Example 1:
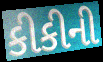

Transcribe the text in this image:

કીકીની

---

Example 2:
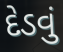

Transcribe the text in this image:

દેડવું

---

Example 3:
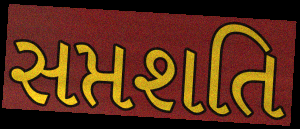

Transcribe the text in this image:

સપ્તશતિ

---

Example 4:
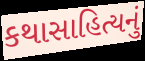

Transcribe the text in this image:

કથાસાહિત્યનું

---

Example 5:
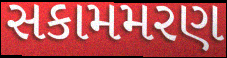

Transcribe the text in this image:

સકામમરણ